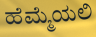
ಹೆಮ್ಮೆಯಲಿ